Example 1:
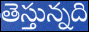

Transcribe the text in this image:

తెస్తున్నది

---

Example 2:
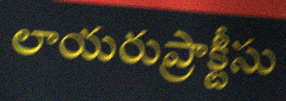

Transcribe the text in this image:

లాయరుప్రాక్టీసు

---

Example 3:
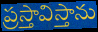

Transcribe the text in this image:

ప్రస్తావిస్తాను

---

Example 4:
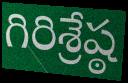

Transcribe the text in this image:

గిరిశ్రేష్ఠ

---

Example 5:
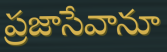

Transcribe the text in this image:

ప్రజాసేవానూ